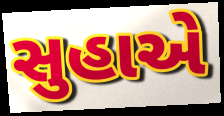
સુહાએ